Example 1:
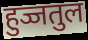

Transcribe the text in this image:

हुज्जतुल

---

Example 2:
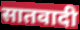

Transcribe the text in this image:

सातवादी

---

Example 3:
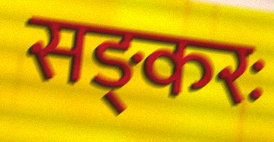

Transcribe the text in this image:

सङ्करः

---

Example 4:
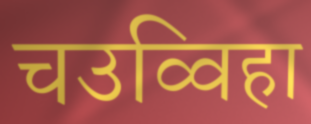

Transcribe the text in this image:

चउव्विहा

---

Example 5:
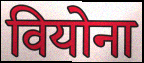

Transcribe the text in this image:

वियोना